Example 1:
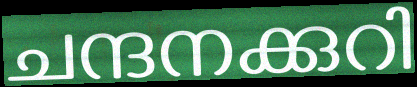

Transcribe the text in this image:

ചന്ദനക്കുറി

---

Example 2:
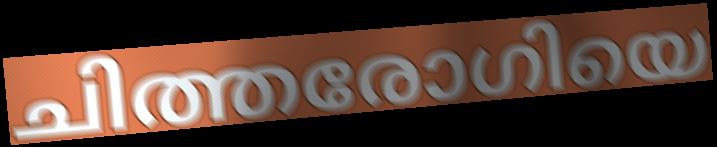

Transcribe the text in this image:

ചിത്തരോഗിയെ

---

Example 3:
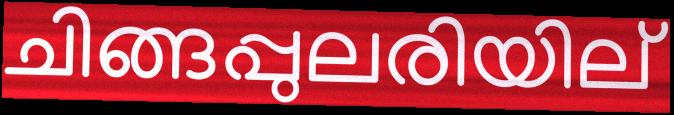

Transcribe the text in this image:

ചിങ്ങപ്പുലരിയില്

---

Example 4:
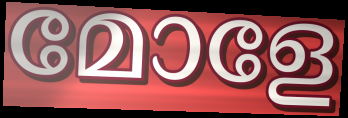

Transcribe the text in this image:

മോളേ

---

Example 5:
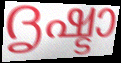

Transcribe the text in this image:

ദൃഷ്ടാ